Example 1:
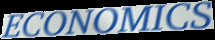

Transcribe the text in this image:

ECONOMICS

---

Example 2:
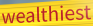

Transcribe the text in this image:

wealthiest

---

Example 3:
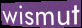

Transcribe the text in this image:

wismut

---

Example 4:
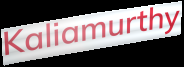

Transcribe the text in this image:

Kaliamurthy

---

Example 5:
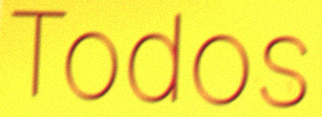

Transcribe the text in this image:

Todos